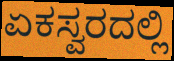
ಏಕಸ್ವರದಲ್ಲಿ